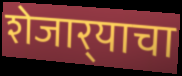
शेजार्‍याचा